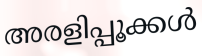
അരളിപ്പൂക്കൾ